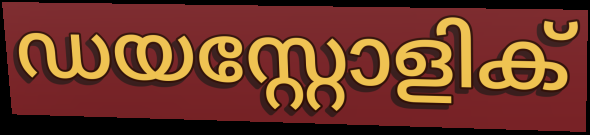
ഡയസ്റ്റോളിക്